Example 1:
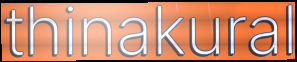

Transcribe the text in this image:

thinakural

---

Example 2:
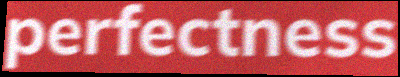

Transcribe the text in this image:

perfectness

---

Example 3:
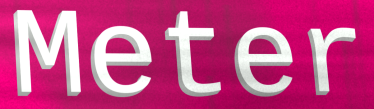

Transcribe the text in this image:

Meter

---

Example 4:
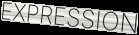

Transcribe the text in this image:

EXPRESSION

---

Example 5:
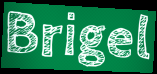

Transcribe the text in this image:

Brigel